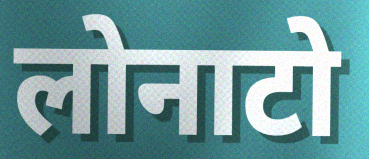
लोनाटो